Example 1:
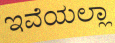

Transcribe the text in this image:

ಇವೆಯಲ್ಲಾ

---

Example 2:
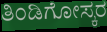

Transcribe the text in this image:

ತಿಂಡಿಗೋಸ್ಕರ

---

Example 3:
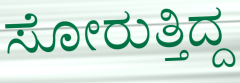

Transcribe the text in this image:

ಸೋರುತ್ತಿದ್ದ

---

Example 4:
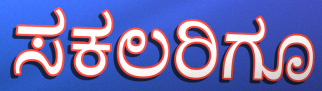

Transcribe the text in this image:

ಸಕಲರಿಗೂ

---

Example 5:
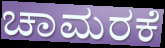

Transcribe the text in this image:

ಚಾಮರಕೆ